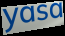
yasa